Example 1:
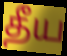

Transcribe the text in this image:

தீய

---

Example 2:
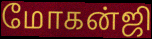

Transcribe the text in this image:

மோகன்ஜி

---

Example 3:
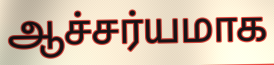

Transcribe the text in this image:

ஆச்சர்யமாக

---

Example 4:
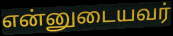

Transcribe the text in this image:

என்னுடையவர்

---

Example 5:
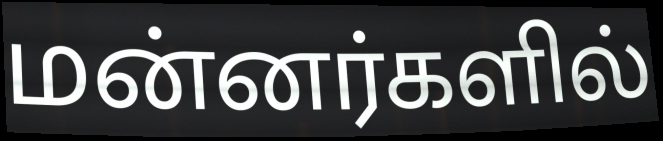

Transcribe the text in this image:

மன்னர்களில்